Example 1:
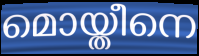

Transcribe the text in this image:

മൊയ്തീനെ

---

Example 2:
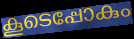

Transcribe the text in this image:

കൂടെപ്പോകും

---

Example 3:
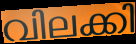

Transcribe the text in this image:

വിലക്കി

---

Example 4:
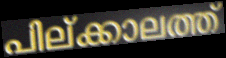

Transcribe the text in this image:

പില്ക്കാലത്ത്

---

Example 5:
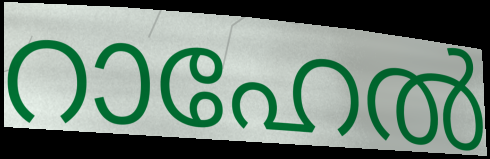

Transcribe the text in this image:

റാഹേൽ